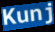
Kunj